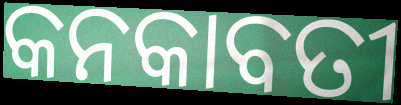
କନକାବତୀ